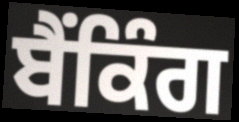
ਬੈਂਕਿੰਗ